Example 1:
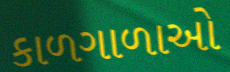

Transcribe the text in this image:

કાળગાળાઓ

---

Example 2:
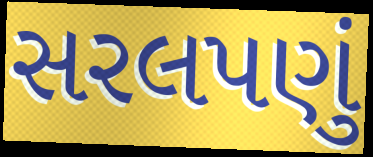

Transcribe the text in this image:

સરલપણું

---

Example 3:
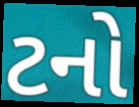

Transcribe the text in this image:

ટનો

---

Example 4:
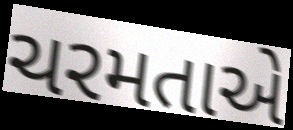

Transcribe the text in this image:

ચરમતાએ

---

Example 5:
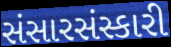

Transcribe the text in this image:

સંસારસંસ્કારી